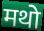
मथो